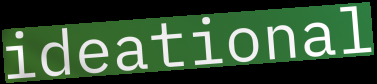
ideational